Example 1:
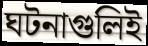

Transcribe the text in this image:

ঘটনাগুলিই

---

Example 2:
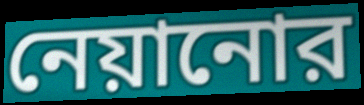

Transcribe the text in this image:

নেয়ানোর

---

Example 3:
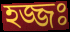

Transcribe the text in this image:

হজ্জঃ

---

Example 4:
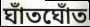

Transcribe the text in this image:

ঘাঁতঘোঁত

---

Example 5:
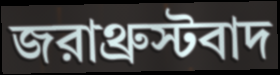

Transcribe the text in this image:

জরাথ্রুস্টবাদ